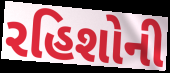
રહિશોની